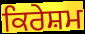
ਕਿਰੇਸ਼ਮ